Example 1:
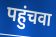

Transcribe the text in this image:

पहुंचवा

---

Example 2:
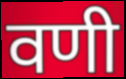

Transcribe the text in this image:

वणी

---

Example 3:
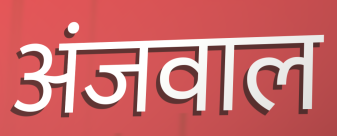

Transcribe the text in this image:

अंजवाल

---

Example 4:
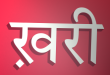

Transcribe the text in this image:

ख़री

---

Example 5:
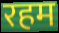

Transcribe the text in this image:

रहम